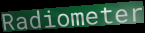
Radiometer